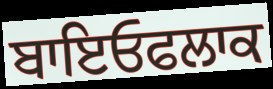
ਬਾਇਓਫਲਾਕ